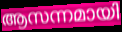
ആസന്നമായി